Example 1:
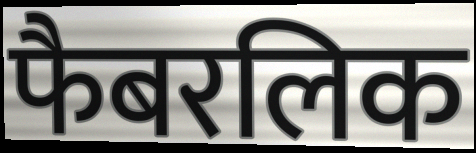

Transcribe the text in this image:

फैबरलिक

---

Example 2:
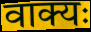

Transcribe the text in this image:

वाक्यः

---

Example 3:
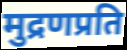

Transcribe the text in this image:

मुद्रणप्रति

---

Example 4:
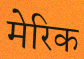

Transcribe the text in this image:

मेरिक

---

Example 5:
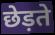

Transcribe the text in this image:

छेड़ते